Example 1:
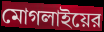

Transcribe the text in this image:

মোগলাইয়ের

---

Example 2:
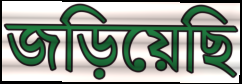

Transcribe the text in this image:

জড়িয়েছি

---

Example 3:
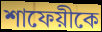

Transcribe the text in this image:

শাফেয়ীকে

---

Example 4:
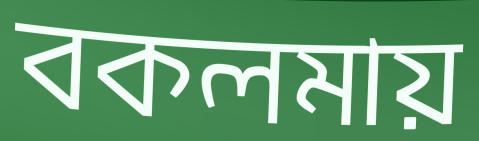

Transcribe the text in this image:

বকলমায়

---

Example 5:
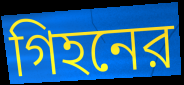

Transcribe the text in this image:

গিহনের